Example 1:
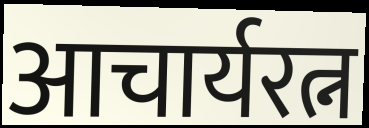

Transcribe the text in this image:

आचार्यरत्न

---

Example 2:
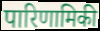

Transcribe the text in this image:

पारिणामिकी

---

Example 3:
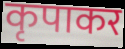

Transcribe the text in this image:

कृपाकर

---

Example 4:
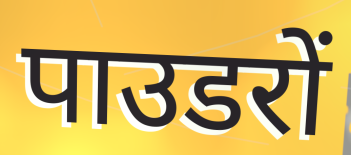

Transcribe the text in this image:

पाउडरों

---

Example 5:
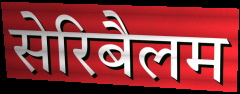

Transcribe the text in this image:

सेरिबैलम